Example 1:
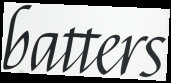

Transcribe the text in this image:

batters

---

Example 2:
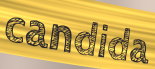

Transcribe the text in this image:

candida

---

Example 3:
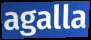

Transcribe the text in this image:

agalla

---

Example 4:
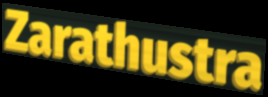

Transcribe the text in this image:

Zarathustra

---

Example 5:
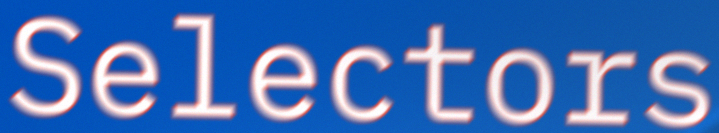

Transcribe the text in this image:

Selectors